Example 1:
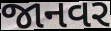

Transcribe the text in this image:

જાનવર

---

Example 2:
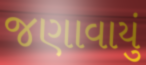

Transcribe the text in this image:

જણાવાયું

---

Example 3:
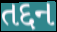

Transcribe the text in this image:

તદ્દન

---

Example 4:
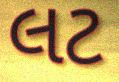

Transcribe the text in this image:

લટ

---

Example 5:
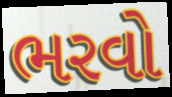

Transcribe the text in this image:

ભરવો